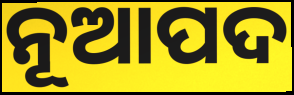
ନୂଆପଦ